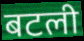
बटली